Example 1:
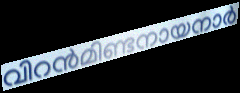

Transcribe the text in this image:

വിറൻമിണ്ടനായനാർ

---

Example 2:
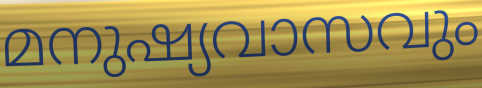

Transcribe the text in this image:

മനുഷ്യവാസവും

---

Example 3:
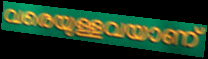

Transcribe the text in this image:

വരെയുള്ളവയാണ്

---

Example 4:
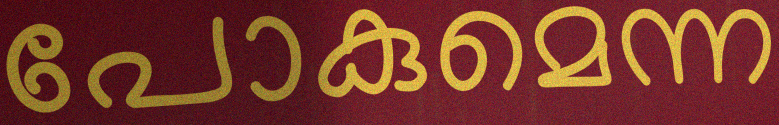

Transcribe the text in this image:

പോകുമെന്ന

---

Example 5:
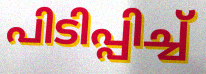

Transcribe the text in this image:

പിടിപ്പിച്ച്